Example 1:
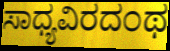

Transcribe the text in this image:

ಸಾಧ್ಯವಿರದಂಥ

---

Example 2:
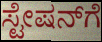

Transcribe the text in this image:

ಸ್ಟೇಷನ್‍ಗೆ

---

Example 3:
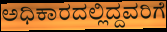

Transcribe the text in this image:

ಅಧಿಕಾರದಲ್ಲಿದ್ದವರಿಗೆ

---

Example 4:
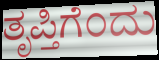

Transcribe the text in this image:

ತೃಪ್ತಿಗೆಂದು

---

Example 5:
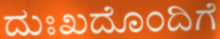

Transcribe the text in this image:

ದುಃಖದೊಂದಿಗೆ